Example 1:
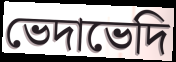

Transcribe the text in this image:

ভেদাভেদি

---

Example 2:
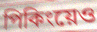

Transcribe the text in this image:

পিকিংয়েও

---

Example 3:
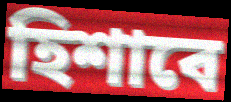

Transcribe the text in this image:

হিশাবে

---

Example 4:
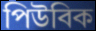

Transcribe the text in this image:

পিউবিক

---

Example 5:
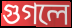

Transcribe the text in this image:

গুগলে